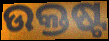
ଉକ୍ତଷ୍ଟ